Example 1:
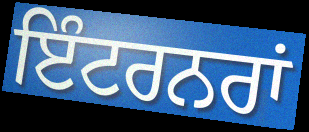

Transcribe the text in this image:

ਇੰਟਰਨਰਾਂ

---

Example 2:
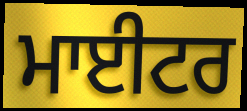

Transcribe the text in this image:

ਮਾਈਟਰ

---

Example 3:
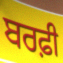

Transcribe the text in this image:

ਬਰਫ਼ੀ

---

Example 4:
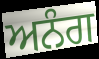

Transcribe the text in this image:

ਅਨੰਗ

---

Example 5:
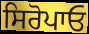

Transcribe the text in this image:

ਸਿਰੋਪਾਓ